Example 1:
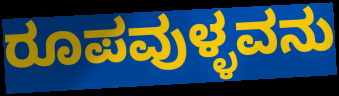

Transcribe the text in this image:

ರೂಪವುಳ್ಳವನು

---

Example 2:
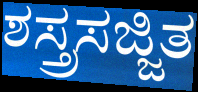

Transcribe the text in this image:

ಶಸ್ತ್ರಸಜ್ಜಿತ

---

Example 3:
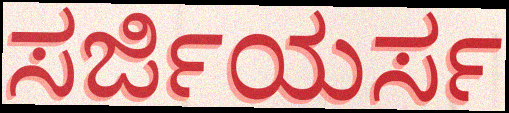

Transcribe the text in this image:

ಸರ್ಜಿಯರ್ಸ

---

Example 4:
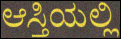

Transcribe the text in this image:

ಆಸ್ತಿಯಲ್ಲಿ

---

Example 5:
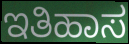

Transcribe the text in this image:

ಇತಿಹಾಸ